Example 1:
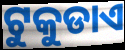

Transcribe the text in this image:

ଟୁକୁଡାଏ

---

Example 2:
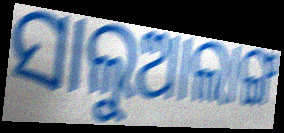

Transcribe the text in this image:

ସାଲୁଆଲାଙ୍ଗ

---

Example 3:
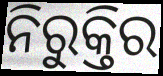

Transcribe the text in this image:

ନିରୁକ୍ତିର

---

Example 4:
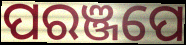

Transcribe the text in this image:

ପରଞ୍ଜପେ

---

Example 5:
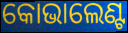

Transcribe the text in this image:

କୋଭାଲେଣ୍ଟ